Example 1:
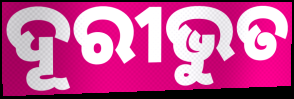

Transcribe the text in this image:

ଦୂରୀଭୁତ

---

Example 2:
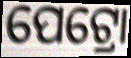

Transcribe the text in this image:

ପେଟ୍ରୋ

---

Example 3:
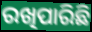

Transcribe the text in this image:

ରଖିପାରିଛି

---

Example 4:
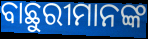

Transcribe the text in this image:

ବାଛୁରୀମାନଙ୍କ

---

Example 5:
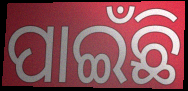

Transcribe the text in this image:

ପାଇଁଛି